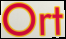
Ort